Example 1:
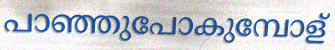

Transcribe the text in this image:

പാഞ്ഞുപോകുമ്പോള്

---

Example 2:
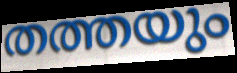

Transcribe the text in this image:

തത്തയും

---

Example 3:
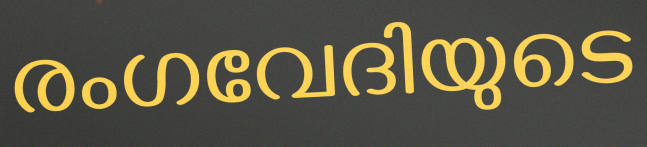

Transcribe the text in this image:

രംഗവേദിയുടെ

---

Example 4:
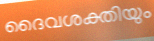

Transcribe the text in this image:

ദൈവശക്തിയും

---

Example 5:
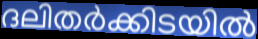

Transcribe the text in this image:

ദലിതർക്കിടയിൽ